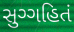
સુગ્ગહિતં